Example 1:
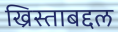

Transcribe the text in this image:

ख्रिस्ताबद्दल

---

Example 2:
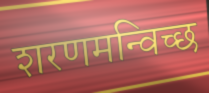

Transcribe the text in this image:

शरणमन्विच्छ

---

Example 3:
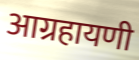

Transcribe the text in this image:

आग्रहायणी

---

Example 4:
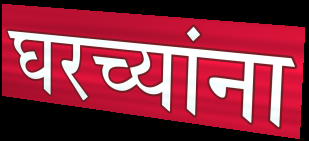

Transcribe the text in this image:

घरच्यांना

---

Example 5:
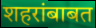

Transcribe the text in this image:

शहरांबाबत